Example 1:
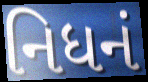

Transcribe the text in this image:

નિધનં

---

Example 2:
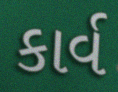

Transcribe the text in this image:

કાર્વ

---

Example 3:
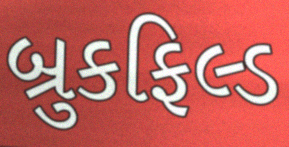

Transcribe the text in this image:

બ્રુકફિલ્ડ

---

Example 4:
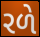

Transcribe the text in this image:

રળે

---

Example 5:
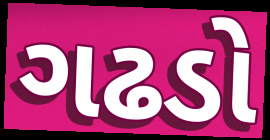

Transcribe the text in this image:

ગઢડો